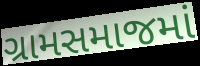
ગ્રામસમાજમાં